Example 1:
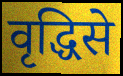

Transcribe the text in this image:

वृद्धिसे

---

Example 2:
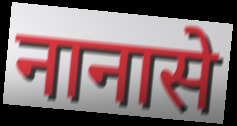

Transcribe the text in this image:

नानासे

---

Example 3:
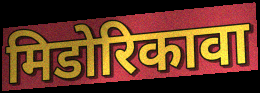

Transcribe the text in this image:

मिडोरिकावा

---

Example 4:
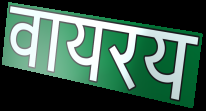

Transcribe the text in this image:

वायरय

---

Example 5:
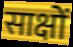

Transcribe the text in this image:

साक्षों